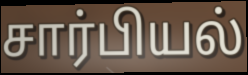
சார்பியல்